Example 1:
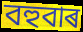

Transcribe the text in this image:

বহুবাৰ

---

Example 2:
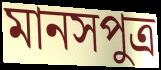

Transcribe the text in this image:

মানসপুত্ৰ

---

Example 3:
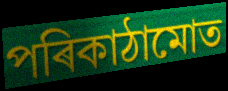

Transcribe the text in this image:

পৰিকাঠামোত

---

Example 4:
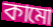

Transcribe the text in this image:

কামো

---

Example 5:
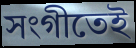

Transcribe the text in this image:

সংগীতেই